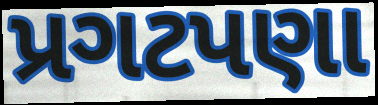
પ્રગટપણા